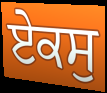
ਏਕਸੁ